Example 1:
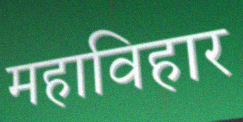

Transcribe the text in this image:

महाविहार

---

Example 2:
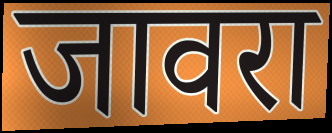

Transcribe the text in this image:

जावरा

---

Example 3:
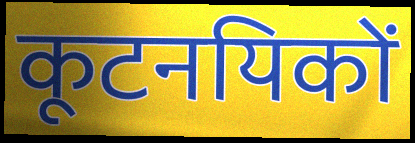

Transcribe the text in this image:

कूटनयिकों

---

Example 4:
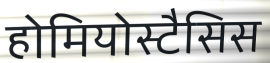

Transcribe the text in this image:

होमियोस्टैसिस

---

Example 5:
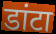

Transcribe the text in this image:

डांटा